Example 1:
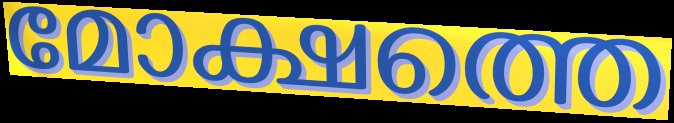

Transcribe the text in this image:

മോക്ഷത്തെ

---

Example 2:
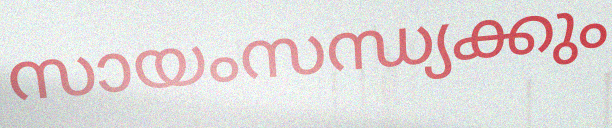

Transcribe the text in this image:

സായംസന്ധ്യക്കും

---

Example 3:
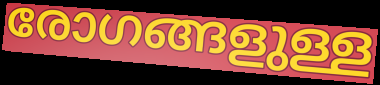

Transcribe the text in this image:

രോഗങ്ങളുള്ള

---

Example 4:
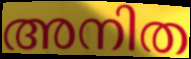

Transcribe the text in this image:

അനിത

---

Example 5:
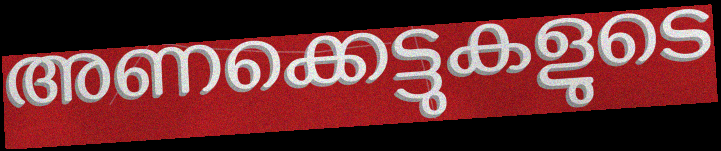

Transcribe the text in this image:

അണക്കെട്ടുകളുടെ